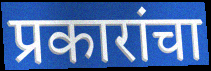
प्रकारांचा